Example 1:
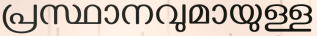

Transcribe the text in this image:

പ്രസ്ഥാനവുമായുള്ള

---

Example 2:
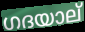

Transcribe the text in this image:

ഗദയാല്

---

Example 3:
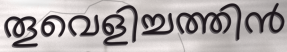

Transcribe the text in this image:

തൂവെളിച്ചത്തിൻ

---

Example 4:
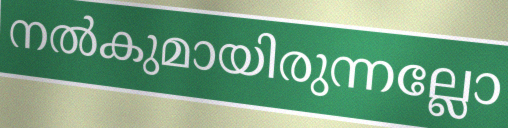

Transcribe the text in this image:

നൽകുമായിരുന്നല്ലോ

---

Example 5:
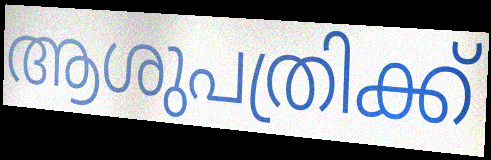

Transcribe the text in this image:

ആശുപത്രിക്ക്